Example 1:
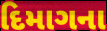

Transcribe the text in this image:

દિમાગના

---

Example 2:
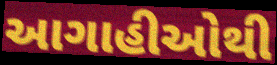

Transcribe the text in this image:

આગાહીઓથી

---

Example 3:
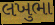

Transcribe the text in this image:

લખુભા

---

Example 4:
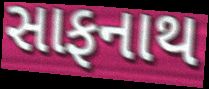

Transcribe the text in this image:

સાફનાથ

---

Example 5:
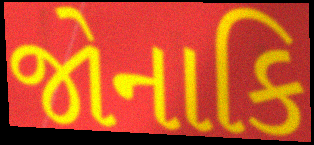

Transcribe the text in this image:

જોનાકિ